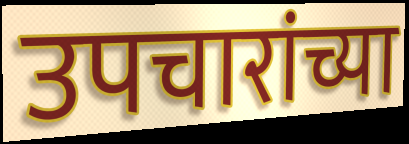
उपचारांच्या